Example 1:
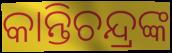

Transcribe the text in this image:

କାନ୍ତିଚନ୍ଦ୍ରଙ୍କ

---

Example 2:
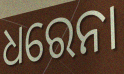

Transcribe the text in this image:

ଧରେନା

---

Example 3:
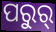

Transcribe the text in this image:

ପରୁର୍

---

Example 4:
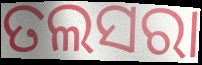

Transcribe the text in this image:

ତଲସରା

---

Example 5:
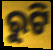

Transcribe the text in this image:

ରୁଟି